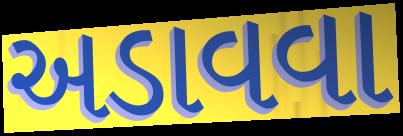
અડાવવા